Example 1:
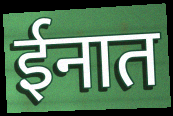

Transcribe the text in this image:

ईनात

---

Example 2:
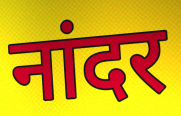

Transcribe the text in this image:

नांदर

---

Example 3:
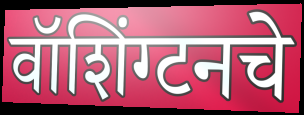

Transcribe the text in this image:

वॉशिंग्टनचे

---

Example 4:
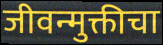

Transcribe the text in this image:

जीवन्मुक्तीचा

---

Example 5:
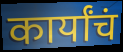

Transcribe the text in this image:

कार्यांचं